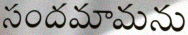
సందమామను